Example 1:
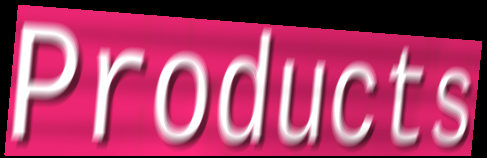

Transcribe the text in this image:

Products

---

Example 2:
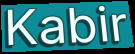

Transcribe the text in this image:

Kabir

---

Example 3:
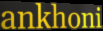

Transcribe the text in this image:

ankhoni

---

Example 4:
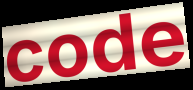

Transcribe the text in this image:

code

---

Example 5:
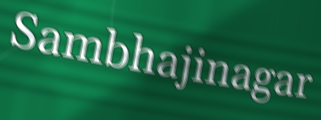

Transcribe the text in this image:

Sambhajinagar